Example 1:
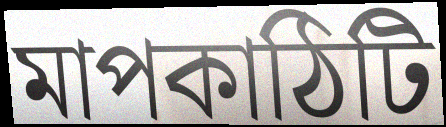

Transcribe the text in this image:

মাপকাঠিটি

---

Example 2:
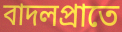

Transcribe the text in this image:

বাদলপ্রাতে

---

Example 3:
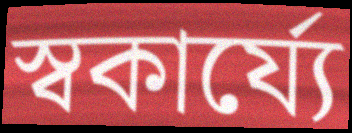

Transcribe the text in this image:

স্বকার্য্যে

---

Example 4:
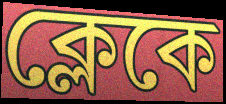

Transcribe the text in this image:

ক্লেকে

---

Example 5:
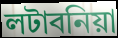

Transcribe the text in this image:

লটাবনিয়া